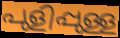
പുളിപ്പുള്ള